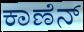
ಕಾಣೆನ್